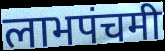
लाभपंचमी